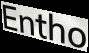
Entho